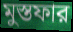
মুস্তফার